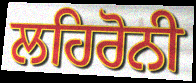
ਲਹਿਰੋਨੀ